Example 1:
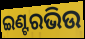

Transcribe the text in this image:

ଇଣ୍ଟରଭିଉ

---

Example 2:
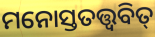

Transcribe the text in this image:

ମନୋସ୍ତତତ୍ତ୍ୱବିତ୍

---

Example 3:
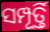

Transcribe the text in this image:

ସମ୍ପୂର୍ତ୍ତି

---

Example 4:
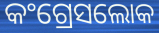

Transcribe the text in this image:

କଂଗ୍ରେସଲୋକ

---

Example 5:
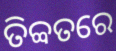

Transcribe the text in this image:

ତିବ୍ବତରେ